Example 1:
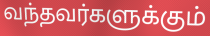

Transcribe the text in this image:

வந்தவர்களுக்கும்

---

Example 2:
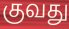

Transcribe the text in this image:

குவது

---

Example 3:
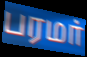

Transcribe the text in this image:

பரமர்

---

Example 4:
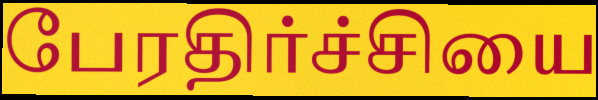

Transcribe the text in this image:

பேரதிர்ச்சியை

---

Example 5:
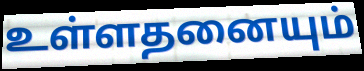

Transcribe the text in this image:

உள்ளதனையும்